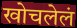
खोचलेलं